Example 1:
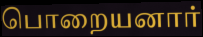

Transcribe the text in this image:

பொறையனார்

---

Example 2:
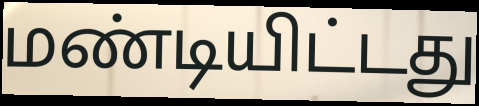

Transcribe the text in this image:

மண்டியிட்டது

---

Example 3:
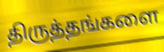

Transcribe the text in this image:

திருத்தங்களை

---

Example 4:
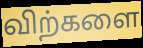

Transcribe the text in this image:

விற்களை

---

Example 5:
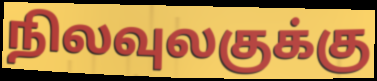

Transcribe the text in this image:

நிலவுலகுக்கு